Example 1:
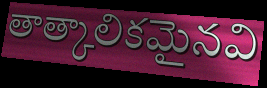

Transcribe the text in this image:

తాత్కాలికమైనవి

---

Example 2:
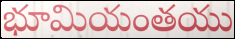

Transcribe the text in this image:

భూమియంతయు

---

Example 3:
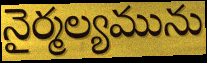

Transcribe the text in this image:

నైర్మల్యమును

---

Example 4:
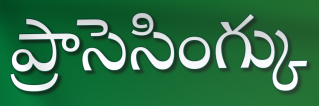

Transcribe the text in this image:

ప్రాసెసింగ్కు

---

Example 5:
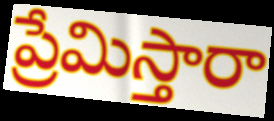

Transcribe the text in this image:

ప్రేమిస్తారా